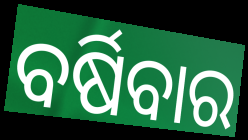
ବର୍ଷିବାର